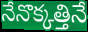
నేనొక్కత్తినే